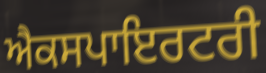
ਐਕਸਪਾਇਰਟਰੀ